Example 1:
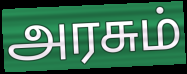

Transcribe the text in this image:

அரசும்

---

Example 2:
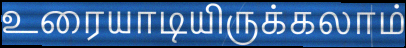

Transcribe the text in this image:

உரையாடியிருக்கலாம்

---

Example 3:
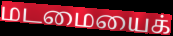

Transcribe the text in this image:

மடமையைக்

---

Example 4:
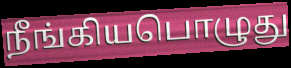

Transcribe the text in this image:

நீங்கியபொழுது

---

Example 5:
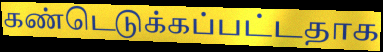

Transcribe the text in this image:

கண்டெடுக்கப்பட்டதாக